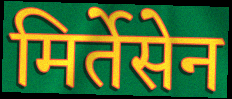
मिर्तेसेन